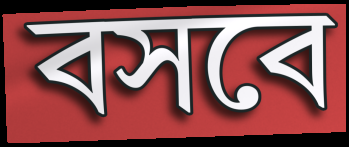
বসবে